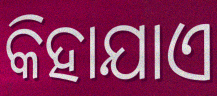
କିହାଯାଏ